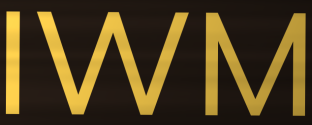
IWM